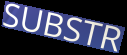
SUBSTR